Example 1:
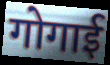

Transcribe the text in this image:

गोगाई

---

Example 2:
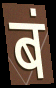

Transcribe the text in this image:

बं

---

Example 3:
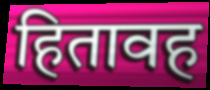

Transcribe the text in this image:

हितावह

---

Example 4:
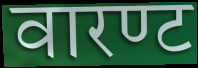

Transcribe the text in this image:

वारण्ट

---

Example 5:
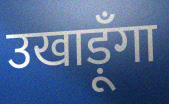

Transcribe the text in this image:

उखाड़ूँगा